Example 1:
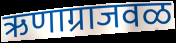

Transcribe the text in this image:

ऋणाग्राजवळ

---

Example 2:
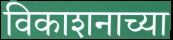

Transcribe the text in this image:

विकाशनाच्या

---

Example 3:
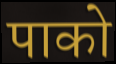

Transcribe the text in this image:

पाको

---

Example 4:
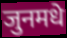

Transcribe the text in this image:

जुनमधे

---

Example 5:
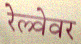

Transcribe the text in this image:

रेल्वेवर